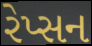
રેપ્સન